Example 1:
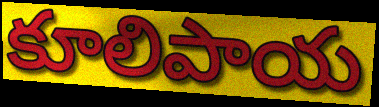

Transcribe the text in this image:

కూలిపాయ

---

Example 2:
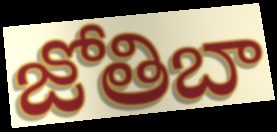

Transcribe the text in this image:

జోతిబా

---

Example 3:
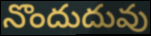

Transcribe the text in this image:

నొందుదువు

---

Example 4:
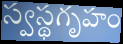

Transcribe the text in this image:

స్వస్థగృహం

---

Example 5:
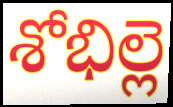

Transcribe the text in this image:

శోభిల్లె